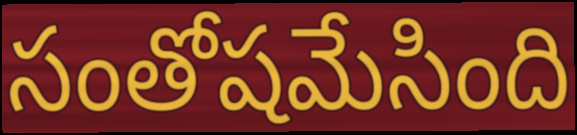
సంతోషమేసింది